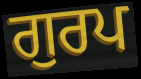
ਗੁਰਪ